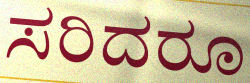
ಸರಿದರೂ